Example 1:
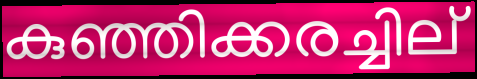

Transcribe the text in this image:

കുഞ്ഞിക്കരച്ചില്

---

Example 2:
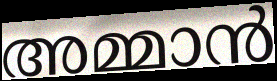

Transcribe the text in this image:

അമ്മാൻ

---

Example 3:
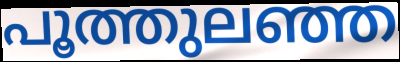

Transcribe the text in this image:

പൂത്തുലഞ്ഞ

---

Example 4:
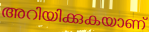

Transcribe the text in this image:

അറിയിക്കുകയാണ്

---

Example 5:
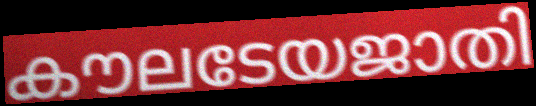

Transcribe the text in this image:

കൗലടേയജാതി